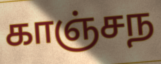
காஞ்சந